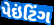
પેઇંટિંગ